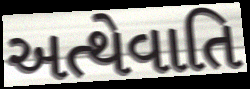
અત્થેવાતિ